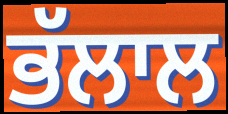
ਭੱਲਾਲ